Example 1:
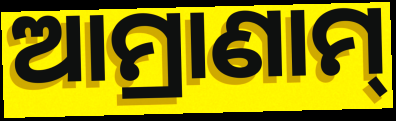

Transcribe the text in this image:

ଆମ୍ରାଣାମ୍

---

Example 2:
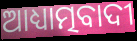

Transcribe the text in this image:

ଆଧ୍ୟାତ୍ମବାଦୀ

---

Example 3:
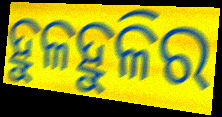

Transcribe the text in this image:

ହୁଳହୁଳିର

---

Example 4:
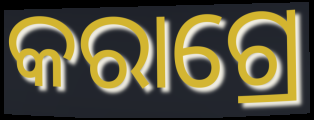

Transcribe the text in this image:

କରାଗ୍ରେ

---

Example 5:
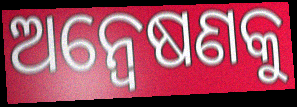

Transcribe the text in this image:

ଅନ୍ବେଷଣକୁ